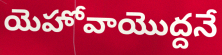
యెహోవాయొద్దనే